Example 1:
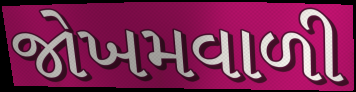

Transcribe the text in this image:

જોખમવાળી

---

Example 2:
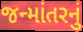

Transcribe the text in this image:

જન્માંતરનું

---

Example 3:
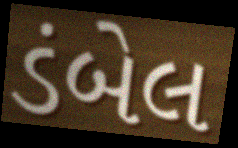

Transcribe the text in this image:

ડંબેલ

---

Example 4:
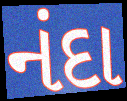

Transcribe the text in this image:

નંદા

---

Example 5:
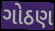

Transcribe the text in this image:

ગોઠણ